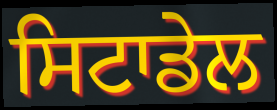
ਸਿਟਾਡੇਲ